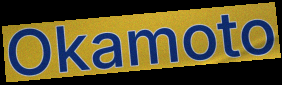
Okamoto